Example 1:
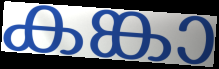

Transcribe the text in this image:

കങ്കാ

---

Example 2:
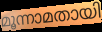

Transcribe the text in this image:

മൂന്നാമതായി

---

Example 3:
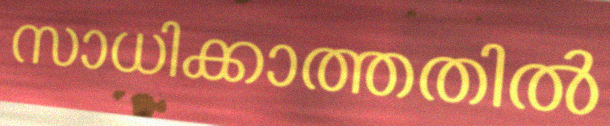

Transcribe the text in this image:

സാധിക്കാത്തതിൽ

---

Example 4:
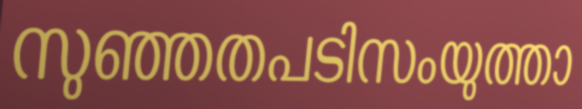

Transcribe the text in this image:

സുഞ്ഞതപടിസംയുത്താ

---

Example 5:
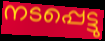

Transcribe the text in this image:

നടപ്പെട്ടു